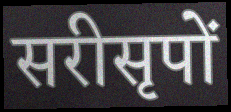
सरीसृपों